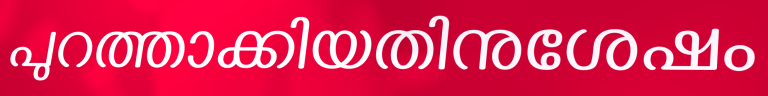
പുറത്താക്കിയതിനുശേഷം